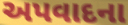
અપવાદના